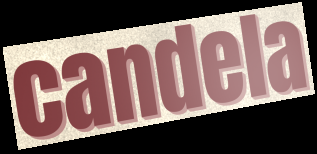
candela